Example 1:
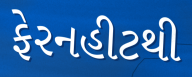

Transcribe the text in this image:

ફેરનહીટથી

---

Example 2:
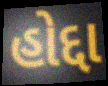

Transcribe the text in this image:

હોદ્દા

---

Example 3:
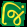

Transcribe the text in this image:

જિં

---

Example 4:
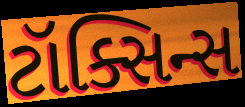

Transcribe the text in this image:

ટૉક્સિન્સ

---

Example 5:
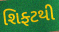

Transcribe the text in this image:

શિફ્ટથી